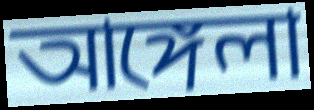
আঙ্গেলা